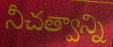
నీచత్వాన్ని